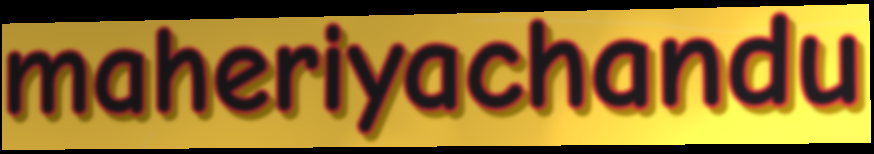
maheriyachandu